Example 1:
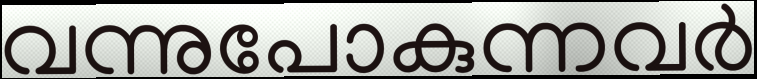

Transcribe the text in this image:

വന്നുപോകുന്നവർ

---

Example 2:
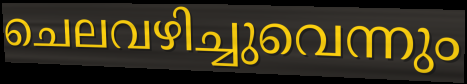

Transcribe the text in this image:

ചെലവഴിച്ചുവെന്നും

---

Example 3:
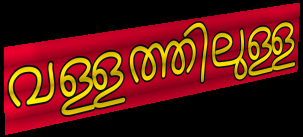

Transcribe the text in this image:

വള്ളത്തിലുള്ള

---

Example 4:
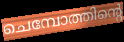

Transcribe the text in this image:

ചെമ്പോത്തിന്റെ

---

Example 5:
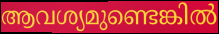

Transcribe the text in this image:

ആവശ്യമുണ്ടെങ്കിൽ